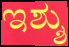
ಇಶ್ಶು